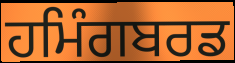
ਹਮਿੰਗਬਰਡ